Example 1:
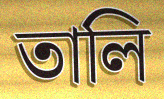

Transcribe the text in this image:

তালি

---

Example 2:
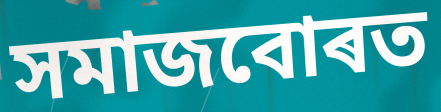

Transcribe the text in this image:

সমাজবোৰত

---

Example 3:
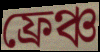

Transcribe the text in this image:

ফ্ৰেঞ্চ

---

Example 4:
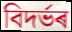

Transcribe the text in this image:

বিদৰ্ভৰ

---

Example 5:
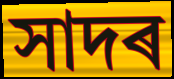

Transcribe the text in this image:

সাদৰ